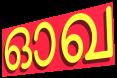
ഓഖ